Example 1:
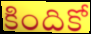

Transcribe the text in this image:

కిందికో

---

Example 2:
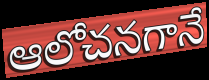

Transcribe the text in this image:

ఆలోచనగానే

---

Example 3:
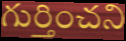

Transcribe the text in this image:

గుర్తించని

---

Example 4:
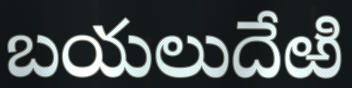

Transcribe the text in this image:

బయలుదేఱి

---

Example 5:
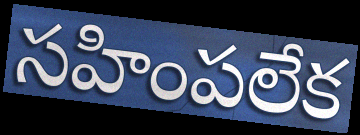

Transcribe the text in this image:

సహింపలేక